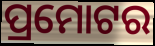
ପ୍ରମୋଟର